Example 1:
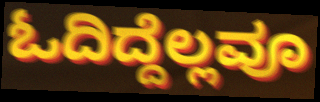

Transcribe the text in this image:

ಓದಿದ್ದೆಲ್ಲವೂ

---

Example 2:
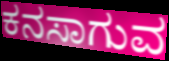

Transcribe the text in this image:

ಕನಸಾಗುವ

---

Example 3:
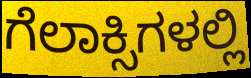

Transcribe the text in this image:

ಗೆಲಾಕ್ಸಿಗಳಲ್ಲಿ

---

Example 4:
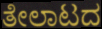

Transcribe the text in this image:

ತೇಲಾಟದ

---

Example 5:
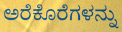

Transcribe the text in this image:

ಅರೆಕೊರೆಗಳನ್ನು